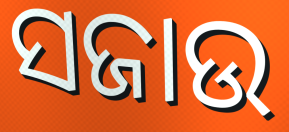
ସଜାଉ